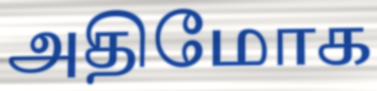
அதிமோக